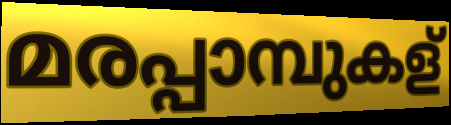
മരപ്പാമ്പുകള്